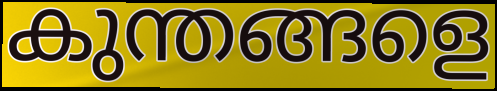
കുന്തങ്ങളെ